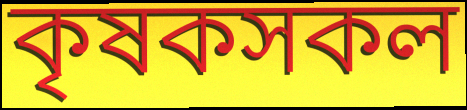
কৃষকসকল